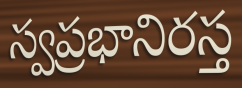
స్వప్రభానిరస్త